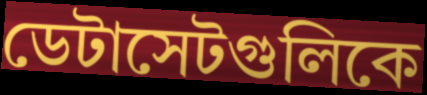
ডেটাসেটগুলিকে